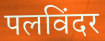
पलविंदर